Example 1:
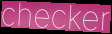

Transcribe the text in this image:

checker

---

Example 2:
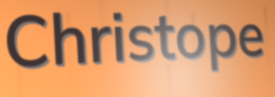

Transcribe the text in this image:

Christope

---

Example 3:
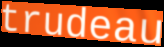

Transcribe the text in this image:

trudeau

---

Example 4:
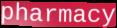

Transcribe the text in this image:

pharmacy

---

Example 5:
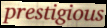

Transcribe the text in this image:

prestigious